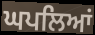
ਘਪਲਿਆਂ